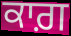
ਕਾਗ਼